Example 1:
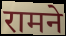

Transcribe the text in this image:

रामने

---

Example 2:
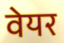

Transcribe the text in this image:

वेयर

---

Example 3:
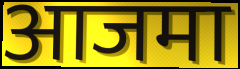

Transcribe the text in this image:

आजमा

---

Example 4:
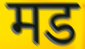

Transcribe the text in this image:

मड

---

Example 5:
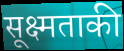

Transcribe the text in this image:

सूक्ष्मताकी